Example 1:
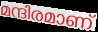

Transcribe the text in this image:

മന്ദിരമാണ്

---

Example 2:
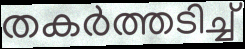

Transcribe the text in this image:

തകർത്തടിച്ച്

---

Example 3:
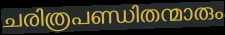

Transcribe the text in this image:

ചരിത്രപണ്ഡിതന്മാരും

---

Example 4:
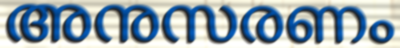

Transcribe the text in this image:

അനുസരണം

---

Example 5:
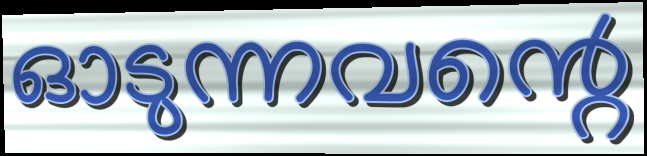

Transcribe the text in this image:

ഓടുന്നവന്റെ